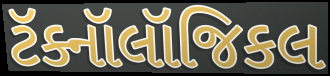
ટૅક્નૉલૉજિકલ